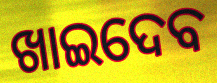
ଖାଇଦେବ